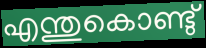
എന്തുകൊണ്ടു്